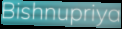
Bishnupriya